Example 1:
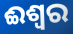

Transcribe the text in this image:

ଈଶ୍ଵର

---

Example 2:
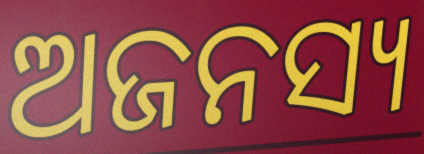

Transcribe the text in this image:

ଅଜନସ୍ୟ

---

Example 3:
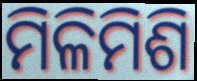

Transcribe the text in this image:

ମିଳିମିଶି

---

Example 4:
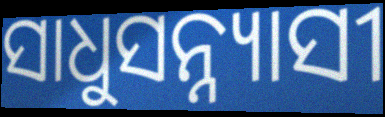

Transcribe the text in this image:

ସାଧୁସନ୍ନ୍ୟାସୀ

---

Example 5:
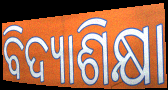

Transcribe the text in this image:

ବିଦ୍ୟାଶିକ୍ଷା